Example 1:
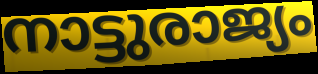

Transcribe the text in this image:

നാട്ടുരാജ്യം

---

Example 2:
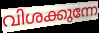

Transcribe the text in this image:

വിശക്കുന്നേ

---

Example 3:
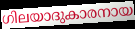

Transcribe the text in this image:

ഗിലയാദുകാരനായ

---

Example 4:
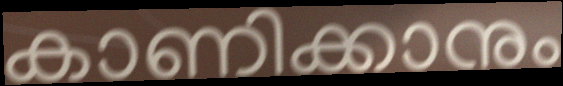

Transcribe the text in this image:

കാണിക്കാനും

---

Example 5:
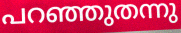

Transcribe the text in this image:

പറഞ്ഞുതന്നു